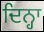
ਦਿਨ੍ਹਾ